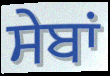
ਸੇਬਾਂ